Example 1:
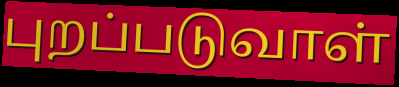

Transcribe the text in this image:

புறப்படுவாள்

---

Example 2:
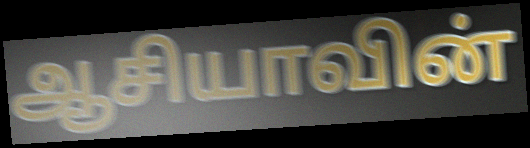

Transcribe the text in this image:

ஆசியாவின்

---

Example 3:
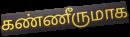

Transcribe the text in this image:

கண்ணீருமாக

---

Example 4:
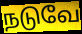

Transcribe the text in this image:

நடுவே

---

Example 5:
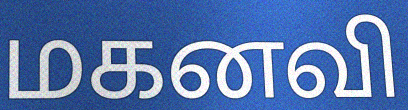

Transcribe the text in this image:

மகனவி